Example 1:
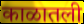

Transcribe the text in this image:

काळातली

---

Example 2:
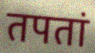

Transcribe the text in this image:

तपतां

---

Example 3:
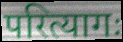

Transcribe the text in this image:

परित्यागः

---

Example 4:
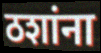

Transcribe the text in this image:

ठशांना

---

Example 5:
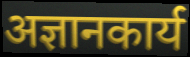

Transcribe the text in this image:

अज्ञानकार्य